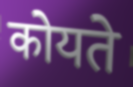
कोयते